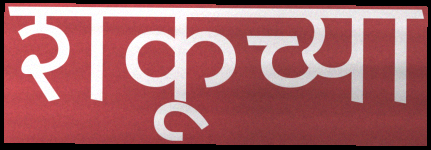
शकूच्या